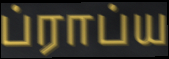
ப்ராப்ய